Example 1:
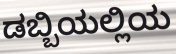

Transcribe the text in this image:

ಡಬ್ಬಿಯಲ್ಲಿಯ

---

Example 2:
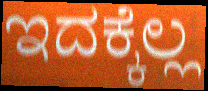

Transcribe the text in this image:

ಇದಕ್ಕೆಲ್ಲ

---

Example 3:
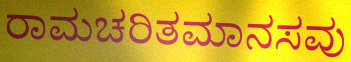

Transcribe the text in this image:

ರಾಮಚರಿತಮಾನಸವು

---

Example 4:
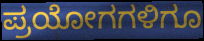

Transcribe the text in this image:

ಪ್ರಯೋಗಗಳಿಗೂ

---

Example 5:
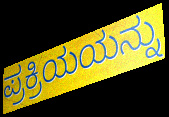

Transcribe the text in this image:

ಪ್ರಕ್ರಿಯಯನ್ನು